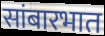
सांबारभात